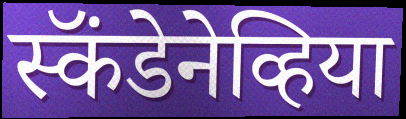
स्कॅंडेनेव्हिया